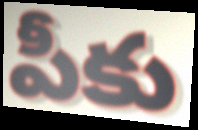
పీకు